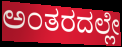
ಅಂತರದಲ್ಲೇ